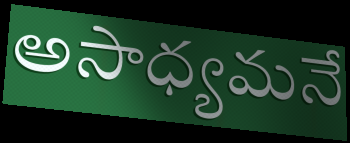
అసాధ్యమనే